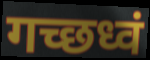
गच्छध्वं